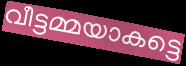
വീട്ടമ്മയാകട്ടെ